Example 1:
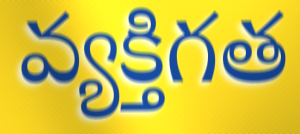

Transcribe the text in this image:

వ్యక్తిగత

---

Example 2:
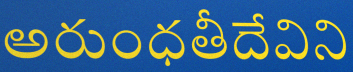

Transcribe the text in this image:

అరుంధతీదేవిని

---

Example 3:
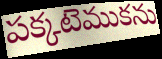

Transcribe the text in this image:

పక్కటెముకను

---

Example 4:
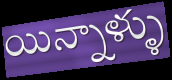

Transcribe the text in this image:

యిన్నాళ్ళు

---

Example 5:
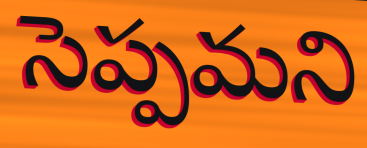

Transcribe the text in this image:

సెప్పమని